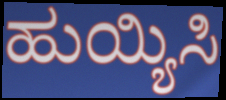
ಹುಯ್ಯಿಸಿ